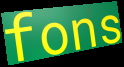
fons